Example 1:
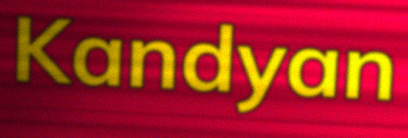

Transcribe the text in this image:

Kandyan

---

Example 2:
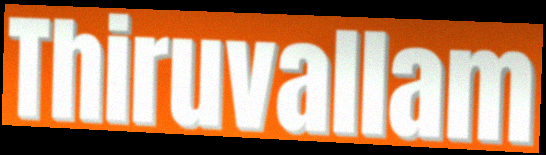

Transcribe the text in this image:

Thiruvallam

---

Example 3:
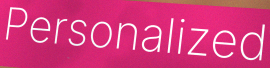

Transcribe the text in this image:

Personalized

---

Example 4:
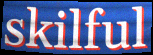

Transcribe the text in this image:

skilful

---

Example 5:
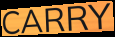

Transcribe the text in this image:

CARRY